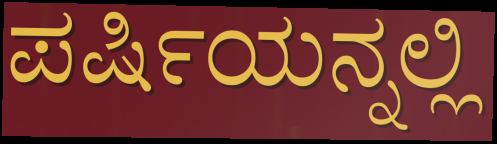
ಪರ್ಷಿಯನ್ನಲ್ಲಿ